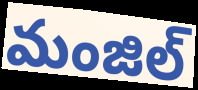
మంజిల్